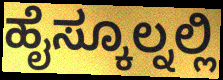
ಹೈಸ್ಕೂಲ್ನಲ್ಲಿ